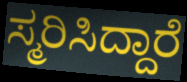
ಸ್ಮರಿಸಿದ್ದಾರೆ